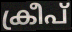
ക്രീപ്